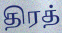
திரத்